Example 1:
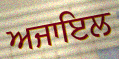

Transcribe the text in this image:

ਅਜਾਇਲ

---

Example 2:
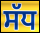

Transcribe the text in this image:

ਸੱਧ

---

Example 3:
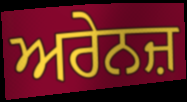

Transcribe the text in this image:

ਅਰੇਨਜ਼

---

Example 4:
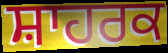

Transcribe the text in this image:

ਸ਼ਾਹਰਕ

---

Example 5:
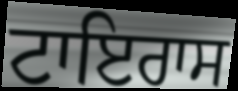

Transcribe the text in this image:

ਟਾਇਰਾਸ